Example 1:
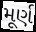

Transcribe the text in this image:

મૂર્ણ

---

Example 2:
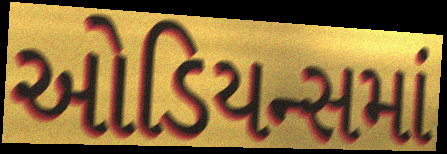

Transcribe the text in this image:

ઓડિયન્સમાં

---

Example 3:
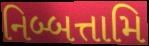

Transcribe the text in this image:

નિબ્બત્તામિ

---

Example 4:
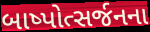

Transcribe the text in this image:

બાષ્પોત્સર્જનના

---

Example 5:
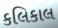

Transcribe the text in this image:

કલિકાલ